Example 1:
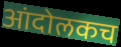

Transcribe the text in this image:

आंदोलकच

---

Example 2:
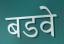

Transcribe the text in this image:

बडवे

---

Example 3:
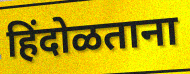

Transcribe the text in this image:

हिंदोळताना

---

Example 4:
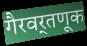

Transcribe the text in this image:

गैरवर्तणूक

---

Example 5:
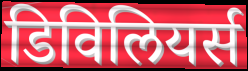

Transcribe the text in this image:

डिविलियर्स